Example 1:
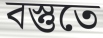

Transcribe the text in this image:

বস্তুতে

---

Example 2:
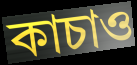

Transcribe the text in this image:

কাচাও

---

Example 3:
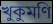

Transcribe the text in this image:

খুকুমণি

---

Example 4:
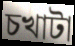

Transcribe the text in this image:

চখাটা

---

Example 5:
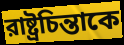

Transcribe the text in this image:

রাষ্ট্রচিন্তাকে